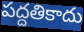
పద్దతికాదు